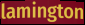
lamington